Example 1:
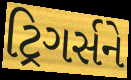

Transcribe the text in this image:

ટ્રિગર્સને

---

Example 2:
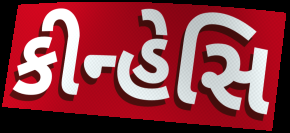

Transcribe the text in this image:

કીન્હેસિ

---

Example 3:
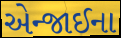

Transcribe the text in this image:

એન્જાઈના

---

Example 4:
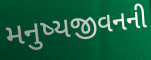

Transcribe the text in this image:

મનુષ્યજીવનની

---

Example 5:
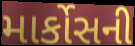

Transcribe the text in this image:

માર્કોસની